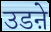
उडऩे